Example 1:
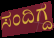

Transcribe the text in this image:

ಸಂದಿಗ್ದ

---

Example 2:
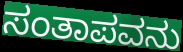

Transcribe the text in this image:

ಸಂತಾಪವನು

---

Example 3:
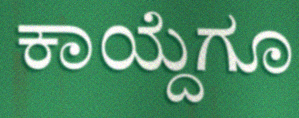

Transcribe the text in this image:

ಕಾಯ್ದೆಗೂ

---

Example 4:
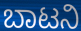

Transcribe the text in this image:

ಬಾಟನಿ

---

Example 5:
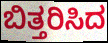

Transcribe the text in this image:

ಬಿತ್ತರಿಸಿದ